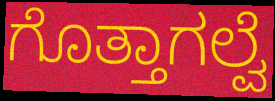
ಗೊತ್ತಾಗಲ್ವೆ